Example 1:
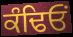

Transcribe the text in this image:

ਕੰਢਿਓਂ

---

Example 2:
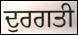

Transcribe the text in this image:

ਦੁਰਗਤੀ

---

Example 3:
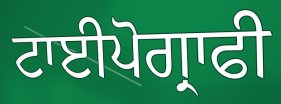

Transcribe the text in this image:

ਟਾਈਪੋਗ੍ਰਾਫੀ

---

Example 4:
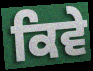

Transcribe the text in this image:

ਕਿਵੇ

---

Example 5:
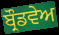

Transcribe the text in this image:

ਬ੍ਰੌਡਵੇਅ